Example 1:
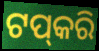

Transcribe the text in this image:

ଟପ୍‌କରି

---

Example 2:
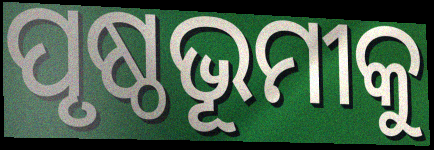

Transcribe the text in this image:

ପୃଷ୍ଠଭୂମୀକୁ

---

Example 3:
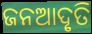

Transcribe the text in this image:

ଜନଆଦୃତି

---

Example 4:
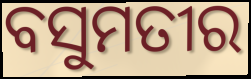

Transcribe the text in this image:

ବସୁମତୀର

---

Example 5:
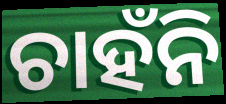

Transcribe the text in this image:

ଚାହଁନି